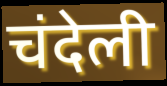
चंदेली